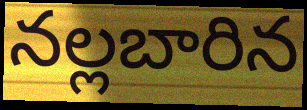
నల్లబారిన